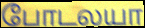
போடலயா